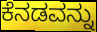
ಕೆನಡವನ್ನು